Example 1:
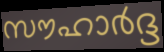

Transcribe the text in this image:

സൗഹാർദ്ദ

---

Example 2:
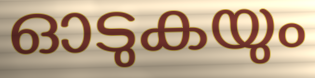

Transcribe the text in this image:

ഓടുകയും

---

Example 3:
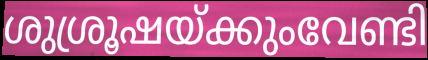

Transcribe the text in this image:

ശുശ്രൂഷയ്ക്കുംവേണ്ടി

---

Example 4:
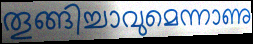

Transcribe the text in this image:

തൂങ്ങിച്ചാവുമെന്നാണു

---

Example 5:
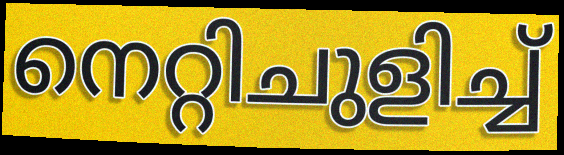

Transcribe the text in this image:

നെറ്റിചുളിച്ച്